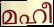
മഹീ